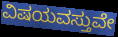
ವಿಷಯವಸ್ತುವೇ